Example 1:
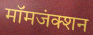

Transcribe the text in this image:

मॉमजंक्शन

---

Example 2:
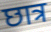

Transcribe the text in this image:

छात्र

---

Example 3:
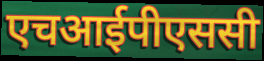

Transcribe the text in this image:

एचआईपीएससी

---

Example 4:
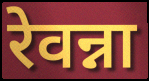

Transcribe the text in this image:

रेवन्ना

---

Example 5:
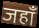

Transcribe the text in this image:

जहाँ